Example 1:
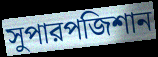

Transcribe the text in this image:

সুপারপজিশান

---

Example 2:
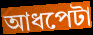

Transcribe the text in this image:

আধপেটা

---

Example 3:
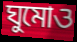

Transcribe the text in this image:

ঘুমোও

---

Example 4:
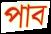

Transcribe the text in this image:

পাব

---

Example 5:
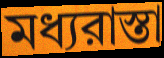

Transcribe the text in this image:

মধ্যরাস্তা